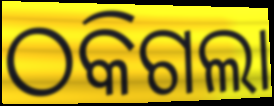
ଠକିଗଲା